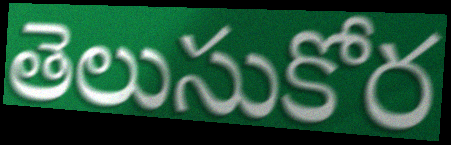
తెలుసుకోర